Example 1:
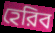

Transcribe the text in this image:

হেরিব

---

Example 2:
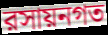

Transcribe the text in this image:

রসায়নগত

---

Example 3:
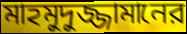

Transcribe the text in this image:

মাহমুদুজ্জামানের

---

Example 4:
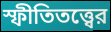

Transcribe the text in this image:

স্ফীতিতত্ত্বের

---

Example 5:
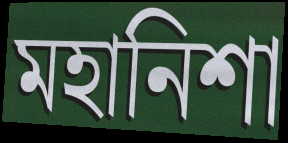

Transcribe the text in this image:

মহানিশা